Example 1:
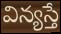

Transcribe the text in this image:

విన్యస్తే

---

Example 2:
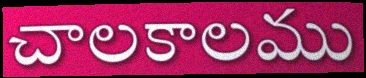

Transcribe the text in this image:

చాలకాలము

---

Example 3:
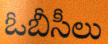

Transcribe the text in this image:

ఓబీసీలు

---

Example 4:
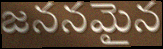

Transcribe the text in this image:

జననమైన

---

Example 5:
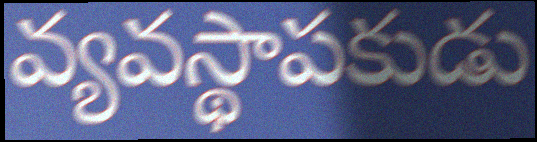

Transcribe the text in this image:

వ్యవస్థాపకుడు